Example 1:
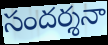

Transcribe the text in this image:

సందర్శనా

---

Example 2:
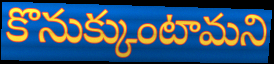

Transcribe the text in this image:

కొనుక్కుంటామని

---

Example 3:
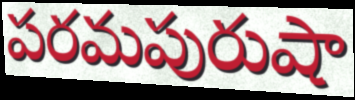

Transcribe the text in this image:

పరమపురుషా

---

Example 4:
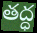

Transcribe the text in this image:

తద్ధ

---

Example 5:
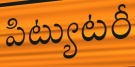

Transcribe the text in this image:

పిట్యుటరీ